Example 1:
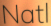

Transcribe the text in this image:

Natl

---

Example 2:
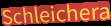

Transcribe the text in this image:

Schleichera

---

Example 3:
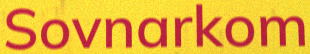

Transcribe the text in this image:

Sovnarkom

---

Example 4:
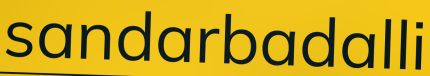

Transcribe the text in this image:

sandarbadalli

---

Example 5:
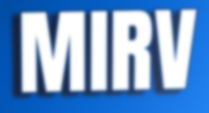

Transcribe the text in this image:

MIRV